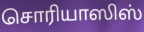
சொரியாஸிஸ்